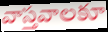
వాస్తవాలకూ